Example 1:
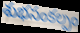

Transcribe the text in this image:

శుభసంకల్పం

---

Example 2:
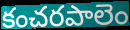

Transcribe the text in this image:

కంచరపాలెం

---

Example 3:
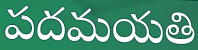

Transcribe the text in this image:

పదమయతి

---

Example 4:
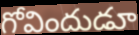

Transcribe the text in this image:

గోవిందుడూ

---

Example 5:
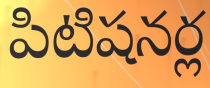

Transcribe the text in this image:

పిటిషనర్ల